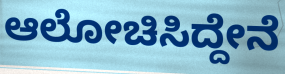
ಆಲೋಚಿಸಿದ್ದೇನೆ